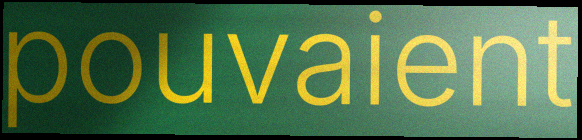
pouvaient